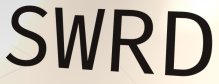
SWRD